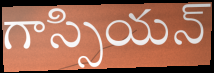
గాస్సియన్